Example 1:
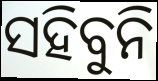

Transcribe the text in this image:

ସହିବୁନି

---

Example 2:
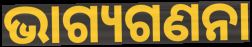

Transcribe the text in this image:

ଭାଗ୍ୟଗଣନା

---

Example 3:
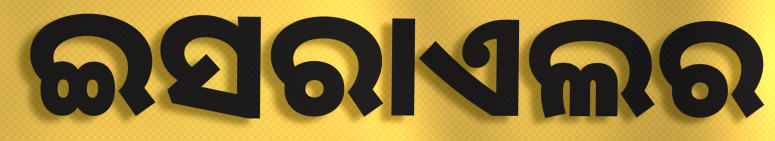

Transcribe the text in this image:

ଇସରାଏଲର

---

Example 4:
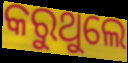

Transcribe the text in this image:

କରୁଥୁଲେ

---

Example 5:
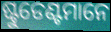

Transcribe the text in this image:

ଷ୍ଟୁଡେଣ୍ଟମାନେ